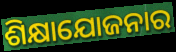
ଶିକ୍ଷାଯୋଜନାର